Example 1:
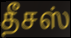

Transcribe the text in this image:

தீசஸ்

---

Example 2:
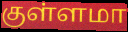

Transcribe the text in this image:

குள்ளமா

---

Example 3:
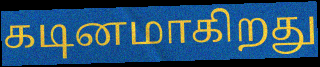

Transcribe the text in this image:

கடினமாகிறது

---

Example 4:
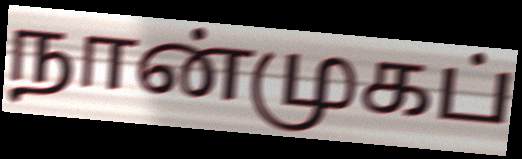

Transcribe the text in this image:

நான்முகப்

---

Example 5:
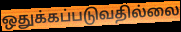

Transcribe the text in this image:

ஒதுக்கப்படுவதில்லை